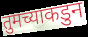
तुमच्याकडुन